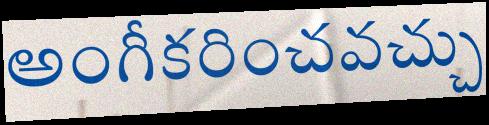
అంగీకరించవచ్చు